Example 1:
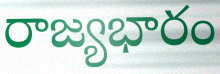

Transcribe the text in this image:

రాజ్యభారం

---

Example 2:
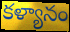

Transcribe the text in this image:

కళ్యానం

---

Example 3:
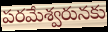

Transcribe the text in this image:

పరమేశ్వరునకు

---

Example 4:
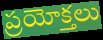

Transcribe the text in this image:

ప్రయోక్తలు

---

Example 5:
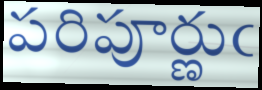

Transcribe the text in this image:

పరిపూర్ణుఁ